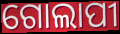
ଗୋଲାପୀ